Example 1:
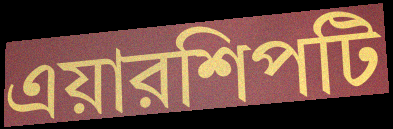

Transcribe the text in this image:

এয়ারশিপটি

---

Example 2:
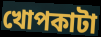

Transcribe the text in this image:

খোপকাটা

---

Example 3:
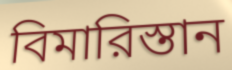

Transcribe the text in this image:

বিমারিস্তান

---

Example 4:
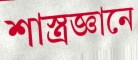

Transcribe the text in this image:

শাস্ত্রজ্ঞানে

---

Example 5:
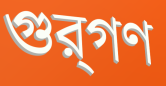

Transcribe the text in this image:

গুর্‌গণ